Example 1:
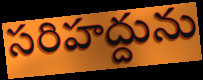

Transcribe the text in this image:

సరిహద్దును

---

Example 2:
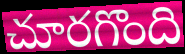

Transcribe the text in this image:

చూరగొంది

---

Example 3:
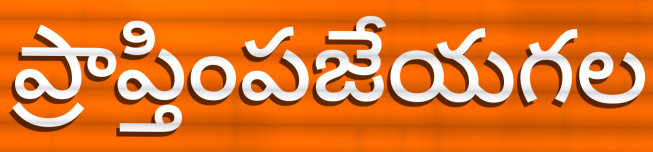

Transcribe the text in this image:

ప్రాప్తింపజేయగల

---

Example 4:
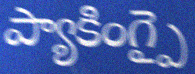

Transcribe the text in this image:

ప్యాకింగ్పై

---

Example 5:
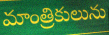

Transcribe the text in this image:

మాంత్రికులును